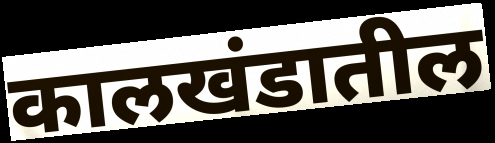
कालखंडातील